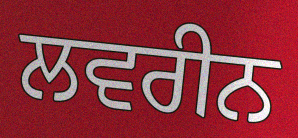
ਲਵਰੀਨ